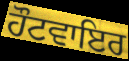
ਹੌਟਵਾਇਰ